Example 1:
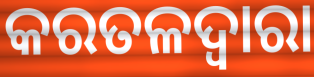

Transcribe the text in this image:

କରତଳଦ୍ଵାରା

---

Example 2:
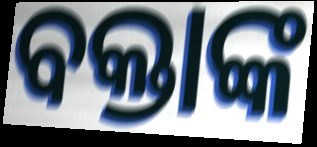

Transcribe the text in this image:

ବକ୍ତାଙ୍କ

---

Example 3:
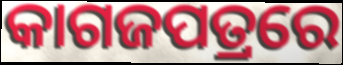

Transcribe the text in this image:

କାଗଜପତ୍ରରେ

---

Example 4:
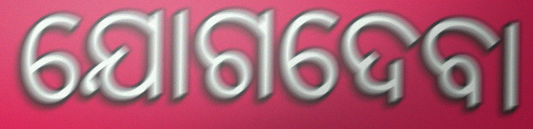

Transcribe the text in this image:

ଯୋଗଦେବା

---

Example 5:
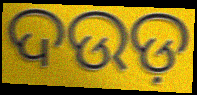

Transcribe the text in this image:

ଦଉଡ଼